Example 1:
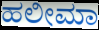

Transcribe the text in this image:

ಹಲೀಮಾ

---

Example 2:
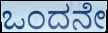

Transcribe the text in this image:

ಒಂದನೇ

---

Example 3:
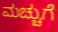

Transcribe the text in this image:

ಮಚ್ಚುಗೆ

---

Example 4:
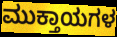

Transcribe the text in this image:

ಮುಕ್ತಾಯಗಳ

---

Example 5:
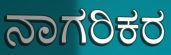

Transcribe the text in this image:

ನಾಗರಿಕರ